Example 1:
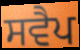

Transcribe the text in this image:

ਸਵੈਪ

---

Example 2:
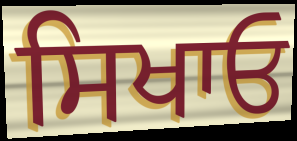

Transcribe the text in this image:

ਸਿਖਾਓ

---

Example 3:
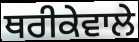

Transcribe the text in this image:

ਥਰੀਕੇਵਾਲੇ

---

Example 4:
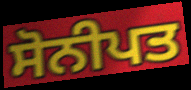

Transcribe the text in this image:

ਸੋਨੀਪਤ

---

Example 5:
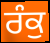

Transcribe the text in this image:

ਰੰਕੁ